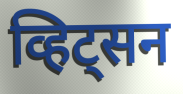
व्हिट्सन